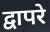
द्वापरे